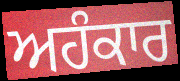
ਅਹੰਕਾਰ